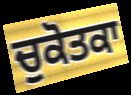
ਚੁਕੋਤਕਾ